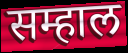
सम्हाल